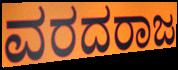
ವರದರಾಜ